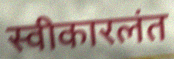
स्वीकारलंत